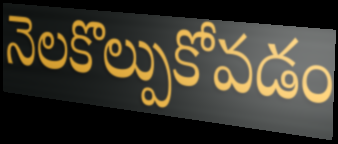
నెలకొల్పుకోవడం